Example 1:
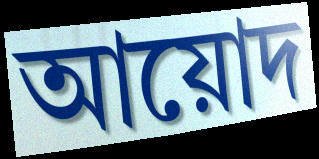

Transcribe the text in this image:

আয়োদ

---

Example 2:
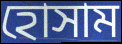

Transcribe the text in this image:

হোসাম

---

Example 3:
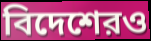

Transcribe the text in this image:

বিদেশেরও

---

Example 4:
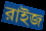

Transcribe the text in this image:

রাইজ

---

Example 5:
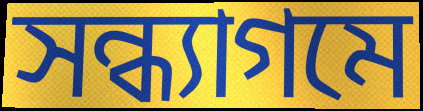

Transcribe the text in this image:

সন্ধ্যাগমে